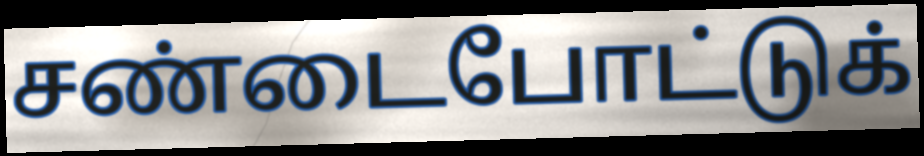
சண்டைபோட்டுக்